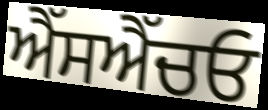
ਐੱਸਐੱਚਓ